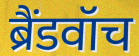
ब्रैंडवॉच